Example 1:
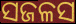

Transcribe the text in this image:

ସଜଳସ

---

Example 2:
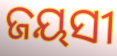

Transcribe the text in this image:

ଜୟସୀ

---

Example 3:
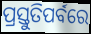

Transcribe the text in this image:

ପ୍ରସ୍ତୁତିପର୍ବରେ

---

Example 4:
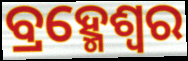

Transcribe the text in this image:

ବ୍ରହ୍ମେଶ୍ଵର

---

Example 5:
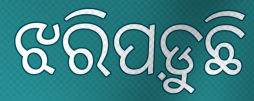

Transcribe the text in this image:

ଝରିପଡ଼ୁଛି